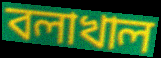
বলাখাল